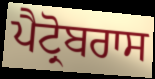
ਪੈਟ੍ਰੋਬਰਾਸ